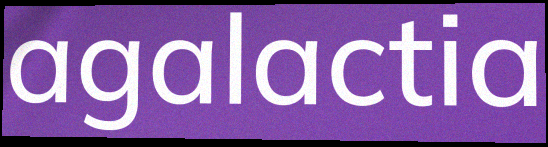
agalactia